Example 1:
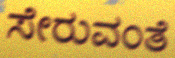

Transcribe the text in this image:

ಸೇರುವಂತೆ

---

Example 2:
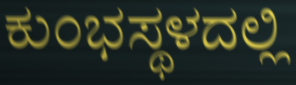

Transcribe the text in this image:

ಕುಂಭಸ್ಥಳದಲ್ಲಿ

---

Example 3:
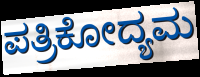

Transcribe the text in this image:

ಪತ್ರಿಕೋದ್ಯಮ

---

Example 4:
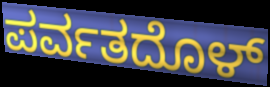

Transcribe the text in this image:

ಪರ್ವತದೊಳ್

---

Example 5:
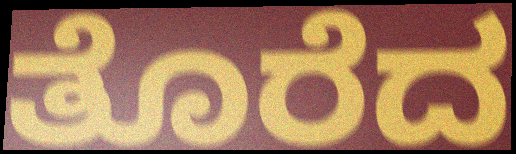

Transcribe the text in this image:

ತೊರೆದ